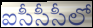
ఐసీసీసీలో